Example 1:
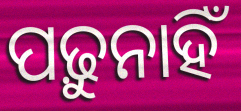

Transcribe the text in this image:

ପଢ଼ୁନାହିଁ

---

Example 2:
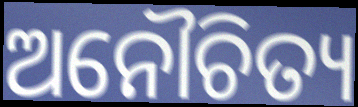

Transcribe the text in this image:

ଅନୌଚିତ୍ୟ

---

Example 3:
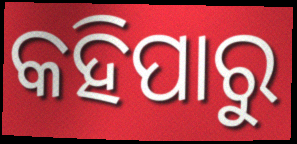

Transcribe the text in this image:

କହିପାରୁ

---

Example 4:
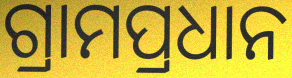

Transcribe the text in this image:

ଗ୍ରାମପ୍ରଧାନ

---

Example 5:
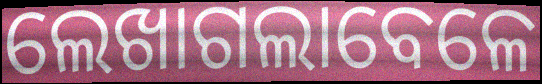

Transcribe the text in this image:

ଲେଖାଗଲାବେଳେ